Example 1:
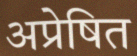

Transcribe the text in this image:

अप्रेषित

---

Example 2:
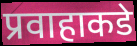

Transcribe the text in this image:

प्रवाहाकडे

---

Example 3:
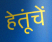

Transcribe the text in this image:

हेतूंचें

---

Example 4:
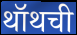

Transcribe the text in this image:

थॉथची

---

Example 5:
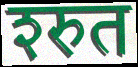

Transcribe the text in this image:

श्रुत